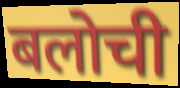
बलोची